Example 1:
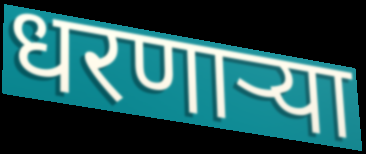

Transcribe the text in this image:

धरणाऱ्या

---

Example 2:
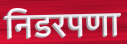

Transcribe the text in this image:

निडरपणा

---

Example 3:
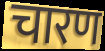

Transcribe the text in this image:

चारण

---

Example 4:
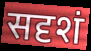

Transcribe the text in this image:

सदृशं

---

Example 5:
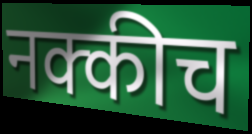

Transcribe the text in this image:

नक्‍कीच